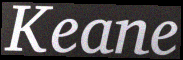
Keane